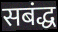
सबंद्ध